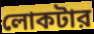
লোকটার